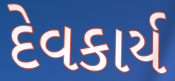
દેવકાર્ય